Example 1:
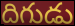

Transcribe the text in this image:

దిగుడు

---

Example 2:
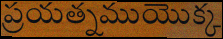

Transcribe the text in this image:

ప్రయత్నముయొక్క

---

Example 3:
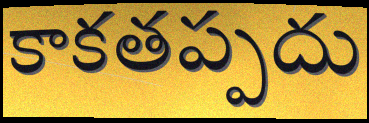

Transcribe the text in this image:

కాకతప్పదు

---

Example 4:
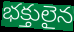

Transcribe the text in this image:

భక్తులైన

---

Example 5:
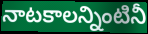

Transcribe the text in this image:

నాటకాలన్నింటినీ